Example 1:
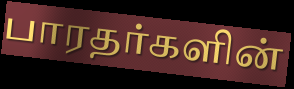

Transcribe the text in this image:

பாரதர்களின்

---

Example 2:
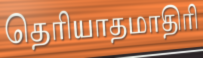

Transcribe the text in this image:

தெரியாதமாதிரி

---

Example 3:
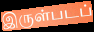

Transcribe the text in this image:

இருள்படப்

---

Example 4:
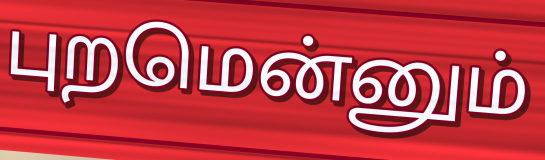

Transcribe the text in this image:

புறமென்னும்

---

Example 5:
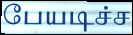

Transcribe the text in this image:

பேயடிச்ச